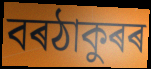
বৰঠাকুৰৰ